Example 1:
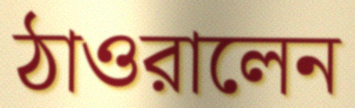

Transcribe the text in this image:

ঠাওরালেন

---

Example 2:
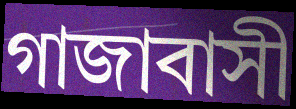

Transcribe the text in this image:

গাজাবাসী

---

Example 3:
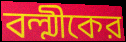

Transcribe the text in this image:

বল্মীকের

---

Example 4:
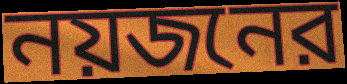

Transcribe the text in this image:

নয়জনের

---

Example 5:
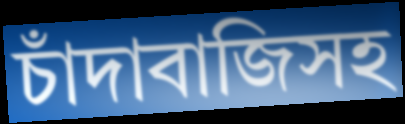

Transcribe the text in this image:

চাঁদাবাজিসহ